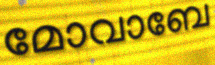
മോവാബേ